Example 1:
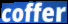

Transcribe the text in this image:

coffer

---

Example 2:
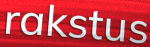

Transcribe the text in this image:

rakstus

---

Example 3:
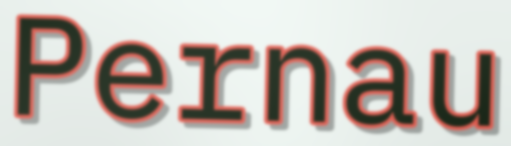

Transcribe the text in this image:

Pernau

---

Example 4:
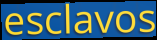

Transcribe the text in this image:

esclavos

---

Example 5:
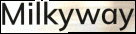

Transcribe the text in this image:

Milkyway